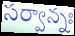
సర్వాన్నః